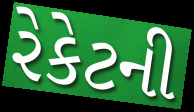
રેકેટની